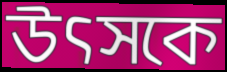
উৎসকে